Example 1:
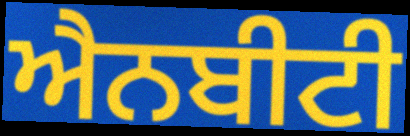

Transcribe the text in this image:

ਐਨਬੀਟੀ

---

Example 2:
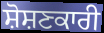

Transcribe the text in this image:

ਸ਼ੋਸ਼ਣਕਾਰੀ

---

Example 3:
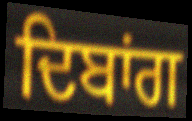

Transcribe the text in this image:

ਦਿਬਾਂਗ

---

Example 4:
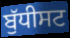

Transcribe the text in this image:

ਬੁੱਧੀਸਟ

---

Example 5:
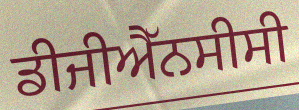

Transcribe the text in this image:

ਡੀਜੀਐੱਨਸੀਸੀ